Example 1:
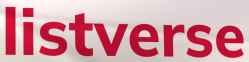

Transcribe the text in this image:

listverse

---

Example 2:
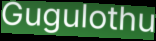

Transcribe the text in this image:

Gugulothu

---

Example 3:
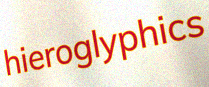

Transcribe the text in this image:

hieroglyphics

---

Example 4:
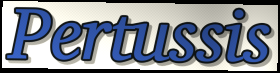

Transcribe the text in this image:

Pertussis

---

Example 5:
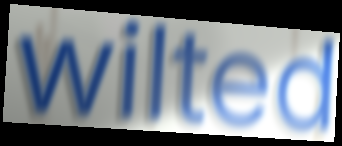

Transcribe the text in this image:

wilted